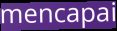
mencapai